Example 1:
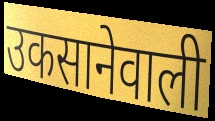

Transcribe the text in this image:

उकसानेवाली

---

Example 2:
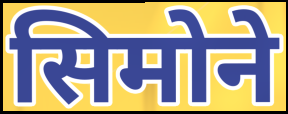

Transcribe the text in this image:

सिमोने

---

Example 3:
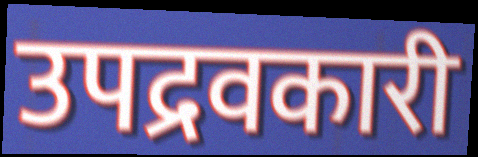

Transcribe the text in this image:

उपद्रवकारी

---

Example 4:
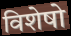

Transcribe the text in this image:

विशेषो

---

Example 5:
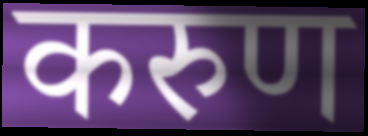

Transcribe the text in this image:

करुण